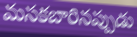
మసకబారినప్పుడు